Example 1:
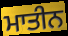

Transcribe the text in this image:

ਮਾਤੀਨ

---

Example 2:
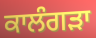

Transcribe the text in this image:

ਕਾਲੰਗੜਾ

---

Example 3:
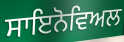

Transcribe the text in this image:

ਸਾਇਨੋਵਿਅਲ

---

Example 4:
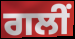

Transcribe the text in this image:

ਗਲੀਂ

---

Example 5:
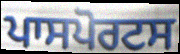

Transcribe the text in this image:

ਪਾਸਪੋਰਟਸ